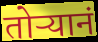
तोऱ्यानं